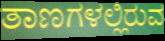
ತಾಣಗಳಲ್ಲಿರುವ